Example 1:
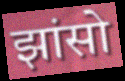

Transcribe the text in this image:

झांसो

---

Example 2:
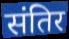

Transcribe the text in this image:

संतिर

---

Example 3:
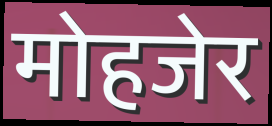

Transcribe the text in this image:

मोहजेर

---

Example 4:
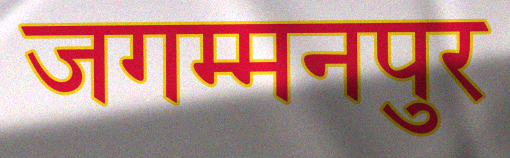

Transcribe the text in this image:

जगम्मनपुर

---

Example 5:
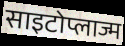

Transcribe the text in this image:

साइटोप्लाज्म